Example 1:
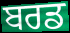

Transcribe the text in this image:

ਬਰਡ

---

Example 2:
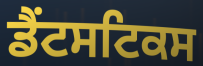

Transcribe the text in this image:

ਡੈਂਟਸਟਿਕਸ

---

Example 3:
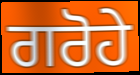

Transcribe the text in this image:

ਗਰੋਹੇ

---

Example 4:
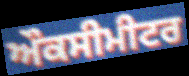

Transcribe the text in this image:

ਔਕਸੀਮੀਟਰ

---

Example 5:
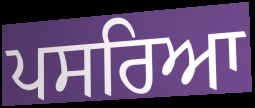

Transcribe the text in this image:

ਪਸਰਿਆ